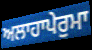
ਅਲਾਹਾਪੇਰੁਮਾ